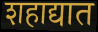
शहाद्यात